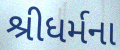
શ્રીધર્મના